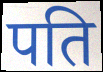
पति